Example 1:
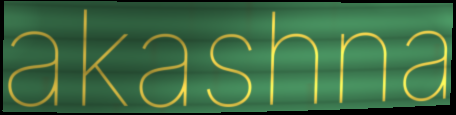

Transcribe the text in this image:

akashna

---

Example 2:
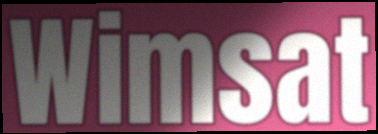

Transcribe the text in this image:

Wimsat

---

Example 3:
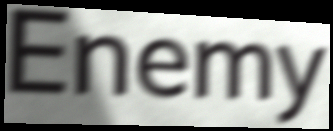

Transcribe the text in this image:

Enemy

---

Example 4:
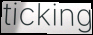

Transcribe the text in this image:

ticking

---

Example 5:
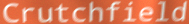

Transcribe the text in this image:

Crutchfield